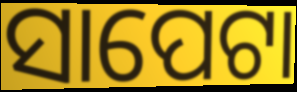
ସାପେଟା